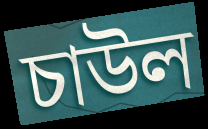
চাউল